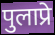
पुलाप्रे